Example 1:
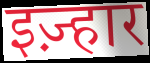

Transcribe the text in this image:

इज़्हार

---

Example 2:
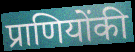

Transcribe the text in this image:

प्राणियोंकी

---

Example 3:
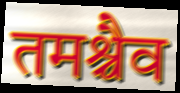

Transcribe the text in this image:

तमश्चैव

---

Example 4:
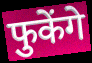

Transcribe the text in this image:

फुकेंगे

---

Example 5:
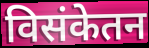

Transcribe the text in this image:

विसंकेतन